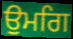
ਉਮਗਿ